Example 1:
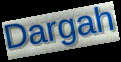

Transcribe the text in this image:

Dargah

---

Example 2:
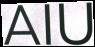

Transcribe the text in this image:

AIU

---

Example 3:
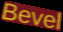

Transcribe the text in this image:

Bevel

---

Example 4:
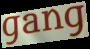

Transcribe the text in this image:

gang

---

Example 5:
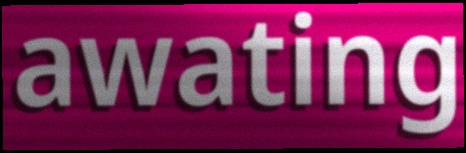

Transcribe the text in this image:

awating